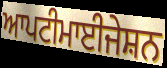
ਆਪਟੀਮਾਈਜੇਸ਼ਨ